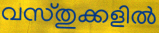
വസ്തുക്കളിൽ